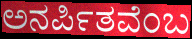
ಅನರ್ಪಿತವೆಂಬ